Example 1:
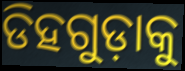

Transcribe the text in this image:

ଡିହଗୁଡ଼ାକୁ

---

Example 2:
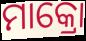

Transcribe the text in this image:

ମାକ୍ରୋ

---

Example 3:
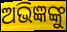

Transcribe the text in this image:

ଅଭିଜ୍ଞଙ୍କୁ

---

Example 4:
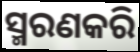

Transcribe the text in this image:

ସ୍ମରଣକରି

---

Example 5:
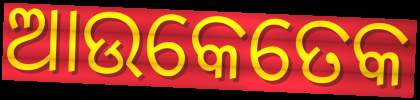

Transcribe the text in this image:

ଆଉକେତେକ